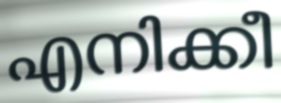
എനിക്കീ